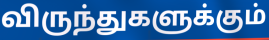
விருந்துகளுக்கும்